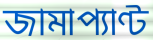
জামাপ্যাণ্ট